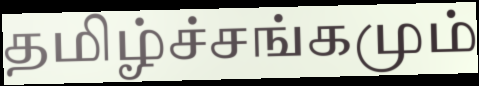
தமிழ்ச்சங்கமும்